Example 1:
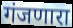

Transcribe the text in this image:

गंजणारा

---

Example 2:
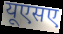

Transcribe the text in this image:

यूएसए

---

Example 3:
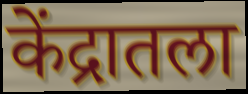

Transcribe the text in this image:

केंद्रातला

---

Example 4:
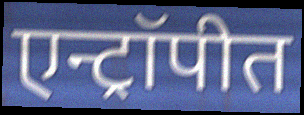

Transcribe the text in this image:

एन्ट्रॉपीत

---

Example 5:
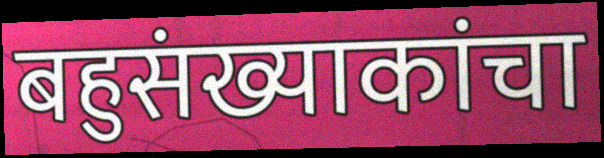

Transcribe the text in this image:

बहुसंख्याकांचा